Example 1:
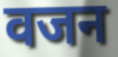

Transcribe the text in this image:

वजन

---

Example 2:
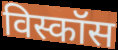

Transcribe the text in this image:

विस्कॉस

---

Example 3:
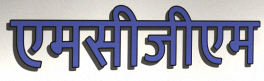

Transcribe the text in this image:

एमसीजीएम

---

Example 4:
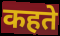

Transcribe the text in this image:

कहते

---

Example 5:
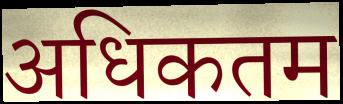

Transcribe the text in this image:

अधिकतम